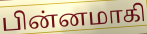
பின்னமாகி